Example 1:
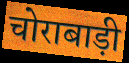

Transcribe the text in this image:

चोराबाड़ी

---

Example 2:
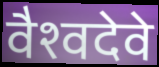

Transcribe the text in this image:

वैश्वदेवे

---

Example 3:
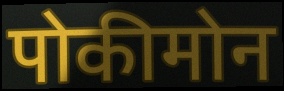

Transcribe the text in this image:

पोकीमोन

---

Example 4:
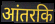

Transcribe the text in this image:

आंतरकि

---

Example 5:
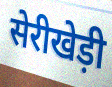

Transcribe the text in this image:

सेरीखेड़ी